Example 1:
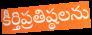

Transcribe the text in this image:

కీర్తిప్రతిష్ఠలను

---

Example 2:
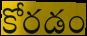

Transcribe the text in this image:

కోరడం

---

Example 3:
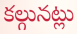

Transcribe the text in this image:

కల్గునట్లు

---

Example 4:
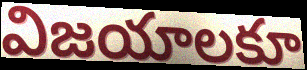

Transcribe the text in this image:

విజయాలకూ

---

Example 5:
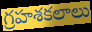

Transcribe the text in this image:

గ్రహశకలాలు